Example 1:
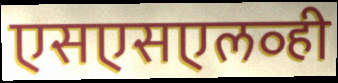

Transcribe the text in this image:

एसएसएलव्ही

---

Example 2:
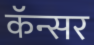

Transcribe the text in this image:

कॅन्सर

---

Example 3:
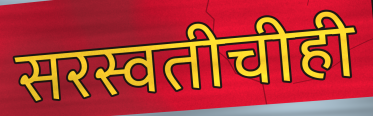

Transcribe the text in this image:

सरस्वतीचीही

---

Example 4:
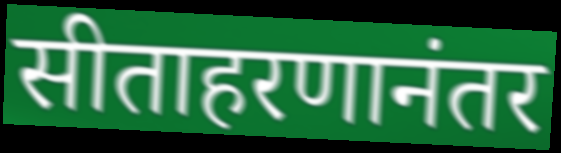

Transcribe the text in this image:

सीताहरणानंतर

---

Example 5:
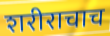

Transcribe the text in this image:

शरीराचाच